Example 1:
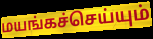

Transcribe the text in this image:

மயங்கச்செய்யும்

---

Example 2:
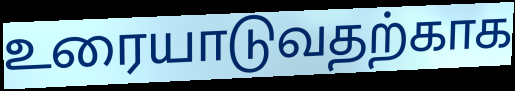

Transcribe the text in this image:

உரையாடுவதற்காக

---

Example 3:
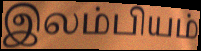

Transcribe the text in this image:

இலம்பியம்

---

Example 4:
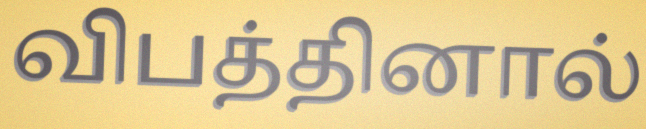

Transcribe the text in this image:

விபத்தினால்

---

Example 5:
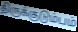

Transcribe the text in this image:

திருக்குடும்பம்